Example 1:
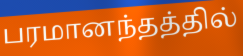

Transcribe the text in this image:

பரமானந்தத்தில்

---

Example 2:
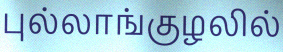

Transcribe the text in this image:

புல்லாங்குழலில்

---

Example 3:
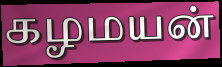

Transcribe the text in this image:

கழமயன்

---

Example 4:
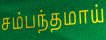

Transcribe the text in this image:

சம்பந்தமாய்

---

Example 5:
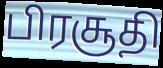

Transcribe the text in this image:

பிரசூதி